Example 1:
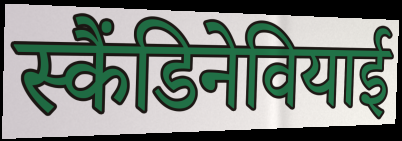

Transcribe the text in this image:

स्कैंडिनेवियाई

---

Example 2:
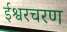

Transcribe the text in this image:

ईश्वरचरण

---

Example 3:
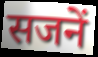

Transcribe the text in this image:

सजनें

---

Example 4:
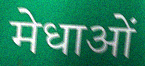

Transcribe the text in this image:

मेधाओं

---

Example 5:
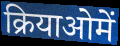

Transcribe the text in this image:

क्रियाओमें